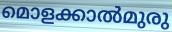
മൊളക്കാൽമുരു